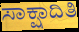
ಸಾಕ್ಷಾದಿತಿ